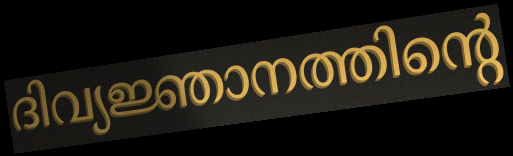
ദിവ്യജ്ഞാനത്തിന്റെ